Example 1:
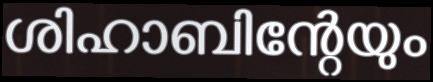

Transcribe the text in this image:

ശിഹാബിന്റേയും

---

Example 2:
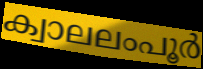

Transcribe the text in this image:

ക്വാലലംപൂർ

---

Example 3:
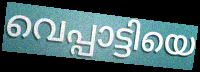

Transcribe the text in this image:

വെപ്പാട്ടിയെ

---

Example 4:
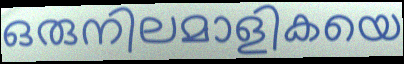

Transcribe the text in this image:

ഒരുനിലമാളികയെ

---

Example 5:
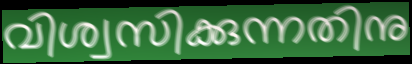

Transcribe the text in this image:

വിശ്വസിക്കുന്നതിനു